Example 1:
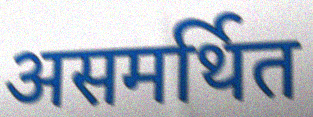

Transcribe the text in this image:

असमर्थित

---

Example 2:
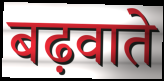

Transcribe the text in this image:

बढ़वाते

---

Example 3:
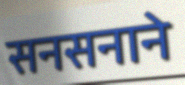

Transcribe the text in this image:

सनसनाने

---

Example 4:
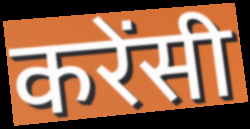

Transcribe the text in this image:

करेंसी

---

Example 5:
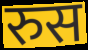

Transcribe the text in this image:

रुस